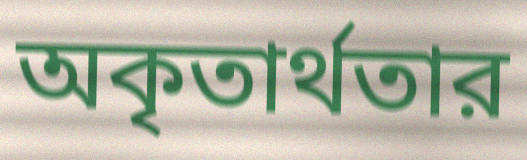
অকৃতার্থতার